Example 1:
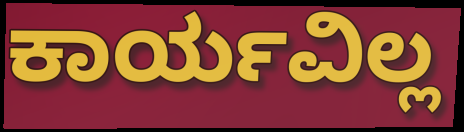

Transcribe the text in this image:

ಕಾರ್ಯವಿಲ್ಲ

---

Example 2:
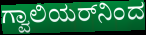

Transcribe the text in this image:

ಗ್ವಾಲಿಯರ್‌ನಿಂದ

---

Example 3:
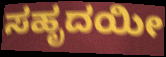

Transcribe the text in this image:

ಸಹೃದಯೀ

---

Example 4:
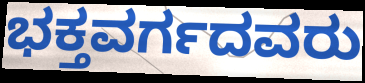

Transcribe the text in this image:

ಭಕ್ತವರ್ಗದವರು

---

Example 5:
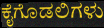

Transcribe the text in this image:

ಕೈಗೊಡಲಿಗಳು